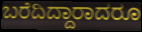
ಬರೆದಿದ್ದಾರಾದರೂ